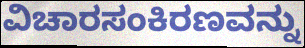
ವಿಚಾರಸಂಕಿರಣವನ್ನು